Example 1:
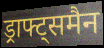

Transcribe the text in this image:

ड्राफ्ट्समैन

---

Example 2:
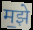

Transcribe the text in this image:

म॒झे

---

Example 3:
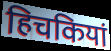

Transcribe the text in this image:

हिचकियां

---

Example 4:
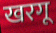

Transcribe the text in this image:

खरगू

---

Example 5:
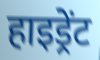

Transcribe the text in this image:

हाइड्रेंट